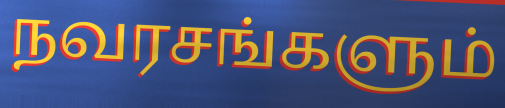
நவரசங்களும்